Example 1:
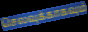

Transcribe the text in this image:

செலவுக்காகவும்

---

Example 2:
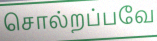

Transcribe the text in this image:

சொல்றப்பவே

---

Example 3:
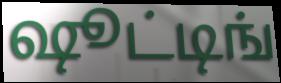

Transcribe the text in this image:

ஷூட்டிங்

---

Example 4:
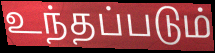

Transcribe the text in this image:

உந்தப்படும்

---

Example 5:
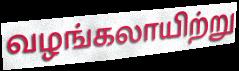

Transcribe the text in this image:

வழங்கலாயிற்று